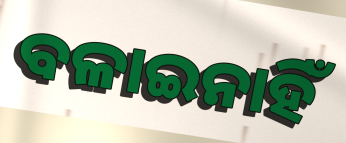
ବଳାଇନାହିଁ